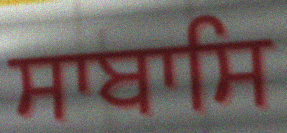
ਸਾਬਾਸਿ